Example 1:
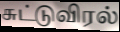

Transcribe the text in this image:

சுட்டுவிரல்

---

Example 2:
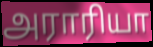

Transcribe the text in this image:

அராரியா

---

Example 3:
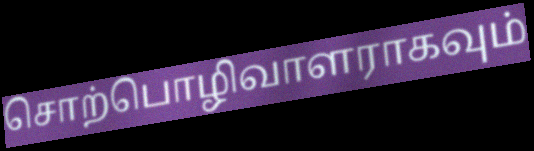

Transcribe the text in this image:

சொற்பொழிவாளராகவும்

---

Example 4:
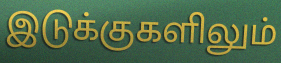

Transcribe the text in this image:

இடுக்குகளிலும்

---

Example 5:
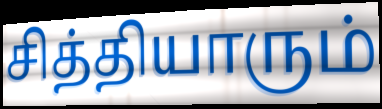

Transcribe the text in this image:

சித்தியாரும்